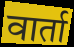
वार्ता